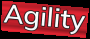
Agility